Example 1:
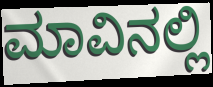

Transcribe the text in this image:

ಮಾವಿನಲ್ಲಿ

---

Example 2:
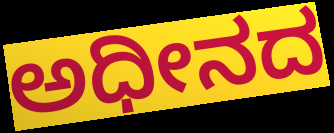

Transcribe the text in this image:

ಅಧೀನದ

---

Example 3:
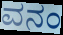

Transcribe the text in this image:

ವನಂ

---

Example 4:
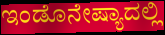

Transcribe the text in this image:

ಇಂಡೊನೇಷ್ಯಾದಲ್ಲಿ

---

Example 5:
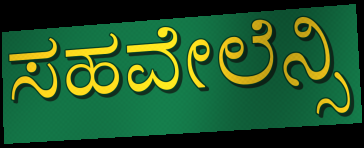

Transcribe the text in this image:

ಸಹವೇಲೆನ್ಸಿ